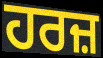
ਹਰਜ਼